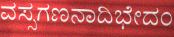
ವಸ್ಸಗಣನಾದಿಭೇದಂ